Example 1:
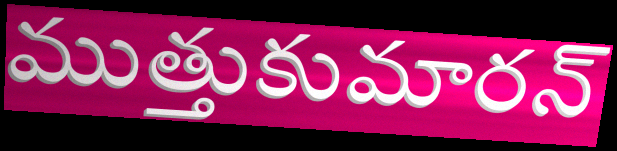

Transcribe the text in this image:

ముత్తుకుమారన్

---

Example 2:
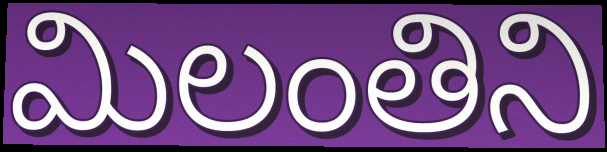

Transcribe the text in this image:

మిలంతిని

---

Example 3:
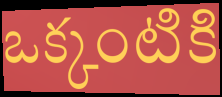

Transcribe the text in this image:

ఒక్కంటికి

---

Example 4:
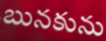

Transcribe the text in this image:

బునకును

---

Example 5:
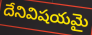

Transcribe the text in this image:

దేనివిషయమై